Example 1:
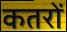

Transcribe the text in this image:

कतरों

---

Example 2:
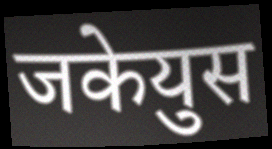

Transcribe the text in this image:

जकेयुस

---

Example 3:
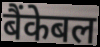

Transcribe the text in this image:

बैंकेबल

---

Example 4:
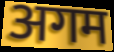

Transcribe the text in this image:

अगम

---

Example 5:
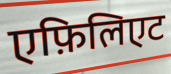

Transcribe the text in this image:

एफ़िलिएट